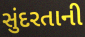
સુંદરતાની